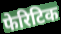
फेरिटिक